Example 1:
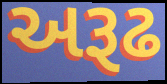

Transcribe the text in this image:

અરૂઢ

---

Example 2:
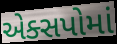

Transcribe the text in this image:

એક્સપોમાં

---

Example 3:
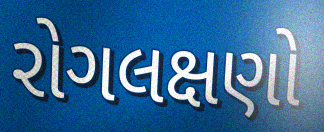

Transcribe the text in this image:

રોગલક્ષણો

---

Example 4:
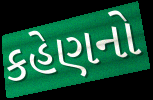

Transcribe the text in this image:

કહેણનો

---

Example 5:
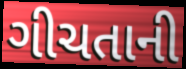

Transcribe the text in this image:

ગીચતાની